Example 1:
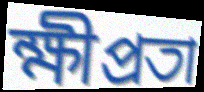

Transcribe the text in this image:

ক্ষীপ্ৰতা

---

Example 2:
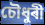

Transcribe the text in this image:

চৌধুৰী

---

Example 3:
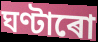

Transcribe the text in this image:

ঘণ্টাৰো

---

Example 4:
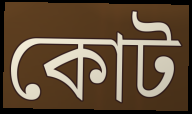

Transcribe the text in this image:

কোট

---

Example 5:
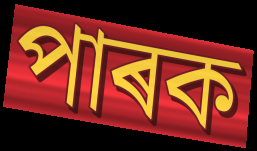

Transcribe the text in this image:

পাৰক